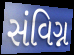
સંવિગ્ન